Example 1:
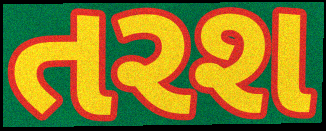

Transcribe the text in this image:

તરશ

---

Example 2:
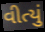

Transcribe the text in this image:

વીત્યું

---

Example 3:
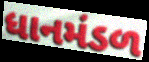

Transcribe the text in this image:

ધાનમંડળ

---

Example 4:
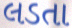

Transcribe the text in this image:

લડતા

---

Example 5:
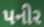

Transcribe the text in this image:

પનીર